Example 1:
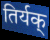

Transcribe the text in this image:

तिर्यक्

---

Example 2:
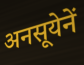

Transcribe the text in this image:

अनसूयेनें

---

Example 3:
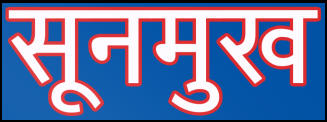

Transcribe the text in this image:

सूनमुख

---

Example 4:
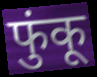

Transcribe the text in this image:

फुंकू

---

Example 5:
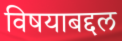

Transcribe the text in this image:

विषयाबद्दल